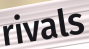
rivals